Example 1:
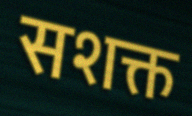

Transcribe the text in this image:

सशक्त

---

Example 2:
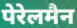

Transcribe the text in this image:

पेरेलमैन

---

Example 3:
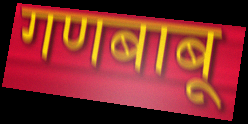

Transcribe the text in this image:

गणबाबू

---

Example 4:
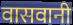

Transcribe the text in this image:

वासवानी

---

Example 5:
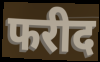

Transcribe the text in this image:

फरीद